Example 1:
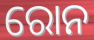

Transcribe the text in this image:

ରୋନ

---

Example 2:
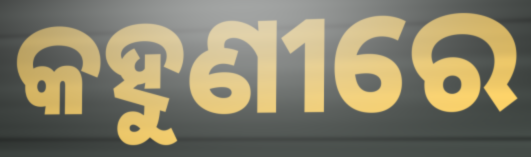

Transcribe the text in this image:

କହୁଣୀରେ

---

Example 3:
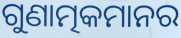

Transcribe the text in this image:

ଗୁଣାତ୍ମକମାନର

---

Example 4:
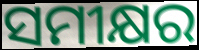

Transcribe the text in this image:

ସମୀକ୍ଷର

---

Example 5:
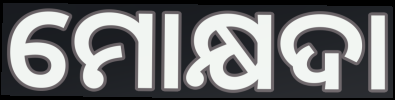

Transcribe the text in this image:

ମୋକ୍ଷଦା